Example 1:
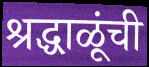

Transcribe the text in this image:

श्रद्धाळूंची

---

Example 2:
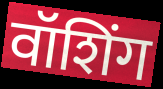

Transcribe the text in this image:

वॉशिंग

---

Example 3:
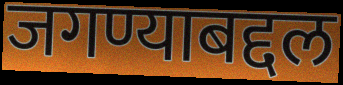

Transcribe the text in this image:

जगण्याबद्दल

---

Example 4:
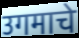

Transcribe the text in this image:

उगमाचे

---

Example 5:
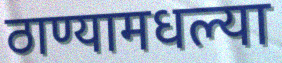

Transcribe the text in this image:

ठाण्यामधल्या